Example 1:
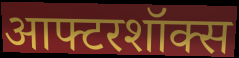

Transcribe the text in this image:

आफ्टरशॉक्स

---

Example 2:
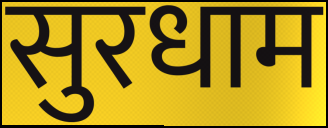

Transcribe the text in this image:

सुरधाम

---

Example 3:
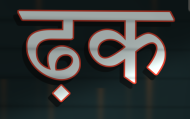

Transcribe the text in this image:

ढ़क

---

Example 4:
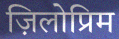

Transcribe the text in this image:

ज़िलोप्रिम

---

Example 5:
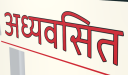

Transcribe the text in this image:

अध्यवसित